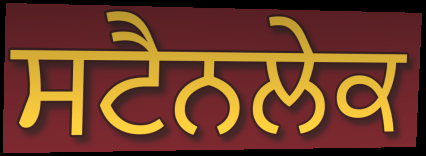
ਸਟੈਨਲੇਕ